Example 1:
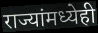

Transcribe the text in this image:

राज्यांमध्येही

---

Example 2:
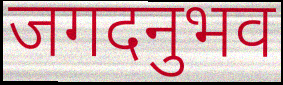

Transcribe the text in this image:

जगदनुभव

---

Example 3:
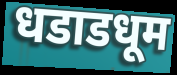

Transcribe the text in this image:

धडाडधूम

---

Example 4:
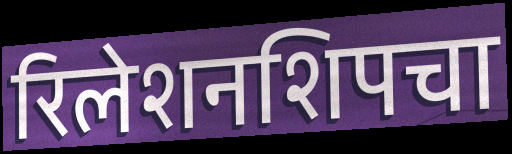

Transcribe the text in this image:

रिलेशनशिपचा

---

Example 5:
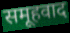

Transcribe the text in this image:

समूहवाद